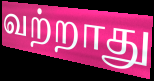
வற்றாது